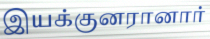
இயக்குனரானார்